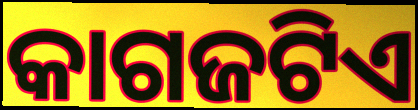
କାଗଜଟିଏ